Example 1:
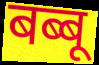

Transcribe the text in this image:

बब्बू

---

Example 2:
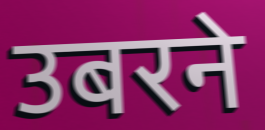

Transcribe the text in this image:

उबरने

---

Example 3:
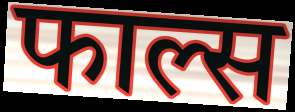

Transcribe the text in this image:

फाल्स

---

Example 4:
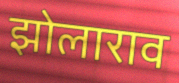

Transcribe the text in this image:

झोलाराव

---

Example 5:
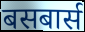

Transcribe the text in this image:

बसबार्स